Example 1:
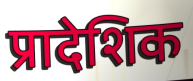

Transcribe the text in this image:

प्रादेशिक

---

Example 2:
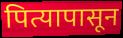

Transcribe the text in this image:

पित्यापासून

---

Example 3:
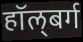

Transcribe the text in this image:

हॉल्बर्ग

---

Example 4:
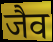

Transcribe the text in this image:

जैव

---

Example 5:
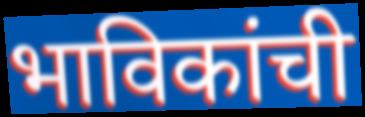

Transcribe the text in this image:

भाविकांची